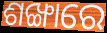
ଶଙ୍ଖାରେ